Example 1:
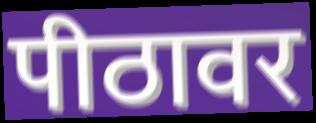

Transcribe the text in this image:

पीठावर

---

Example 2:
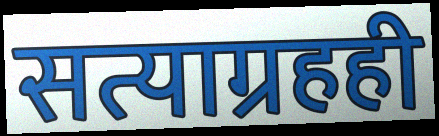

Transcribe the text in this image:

सत्याग्रहही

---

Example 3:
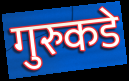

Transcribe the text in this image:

गुरुकडे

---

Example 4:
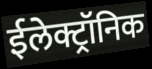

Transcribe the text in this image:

ईलेक्ट्रॉनिक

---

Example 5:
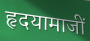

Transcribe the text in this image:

हृदयामाजीं